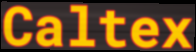
Caltex